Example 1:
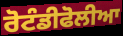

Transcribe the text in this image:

ਰੋਟੰਡੀਫੋਲੀਆ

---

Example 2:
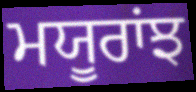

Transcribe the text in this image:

ਮਯੂਰਾਂਝ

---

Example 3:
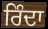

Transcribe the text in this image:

ਰਿੰਦਾ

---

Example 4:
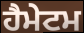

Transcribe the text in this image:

ਹੈਮੇਟਮ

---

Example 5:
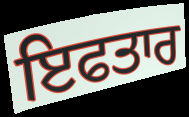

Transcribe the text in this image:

ਇਫਤਾਰ